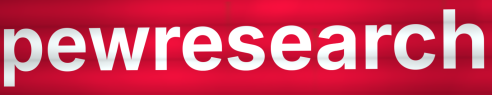
pewresearch